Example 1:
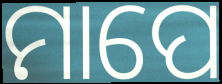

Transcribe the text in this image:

ମାପେ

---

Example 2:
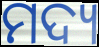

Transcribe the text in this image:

ମଦ୍ୟ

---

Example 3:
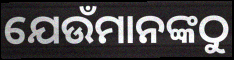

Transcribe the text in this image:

ଯେଉଁମାନଙ୍କଠୁ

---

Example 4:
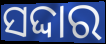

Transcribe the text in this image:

ସଦ୍ଦାର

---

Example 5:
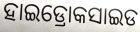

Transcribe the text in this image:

ହାଇଡ୍ରୋକସାଇଡ